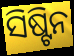
ସିଷ୍ଟିନ